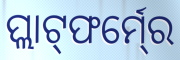
ପ୍ଲାଟ୍‍ଫର୍ମ୍‍ରେ